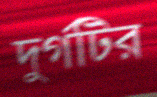
দুর্গটির